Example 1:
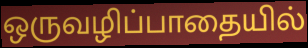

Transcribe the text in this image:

ஒருவழிப்பாதையில்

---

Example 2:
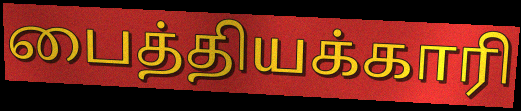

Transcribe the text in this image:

பைத்தியக்காரி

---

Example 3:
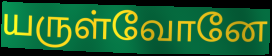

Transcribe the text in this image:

யருள்வோனே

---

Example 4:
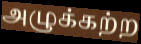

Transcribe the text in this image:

அழுக்கற்ற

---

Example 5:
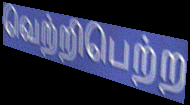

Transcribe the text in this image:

வெற்றிபெற்ற